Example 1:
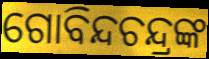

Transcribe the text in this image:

ଗୋବିନ୍ଦଚନ୍ଦ୍ରଙ୍କ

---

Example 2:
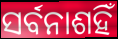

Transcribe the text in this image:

ସର୍ବନାଶହିଁ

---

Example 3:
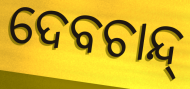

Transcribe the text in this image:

ଦେବଚାନ୍ଦ୍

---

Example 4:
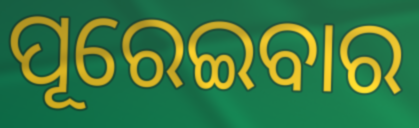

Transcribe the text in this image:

ପୂରେଇବାର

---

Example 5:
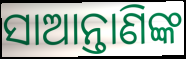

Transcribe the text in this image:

ସାଆନ୍ତାଣିଙ୍କ